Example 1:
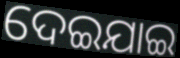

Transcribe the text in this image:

ଦେଇଯାଇ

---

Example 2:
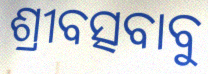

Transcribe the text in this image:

ଶ୍ରୀବତ୍ସବାବୁ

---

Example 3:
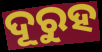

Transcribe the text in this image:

ଦୂରୁହ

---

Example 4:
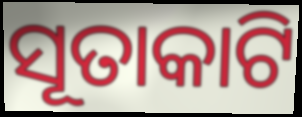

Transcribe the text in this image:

ସୂତାକାଟି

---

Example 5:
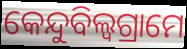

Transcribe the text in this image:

କେନ୍ଦୁବିଲ୍ଵଗ୍ରାମେ